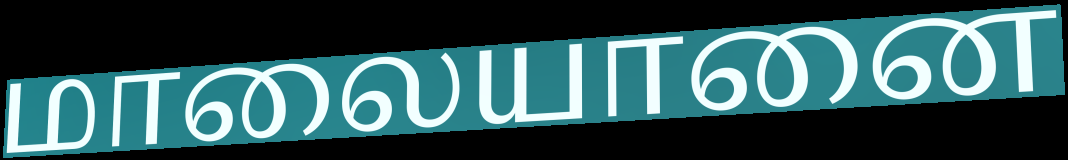
மாலையானை